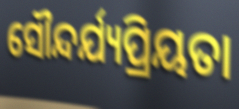
ସୌନ୍ଦର୍ଯ୍ୟପ୍ରିୟତା